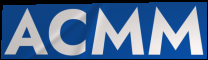
ACMM